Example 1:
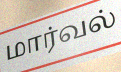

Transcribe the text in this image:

மார்வல்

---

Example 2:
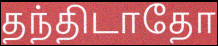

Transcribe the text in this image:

தந்திடாதோ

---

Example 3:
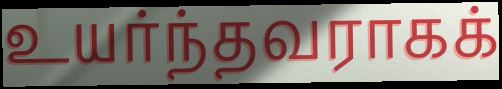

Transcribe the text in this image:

உயர்ந்தவராகக்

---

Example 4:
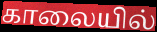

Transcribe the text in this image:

காலையில்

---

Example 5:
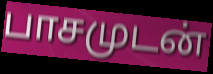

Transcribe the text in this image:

பாசமுடன்